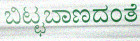
ಬಿಟ್ಟಬಾಣದಂತೆ